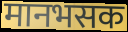
मानभसक